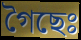
গৈছেঃ